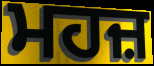
ਮਹਜ਼